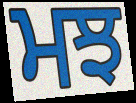
ਮਝ